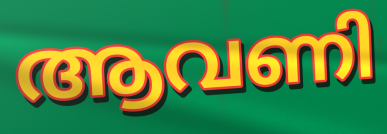
ആവണി